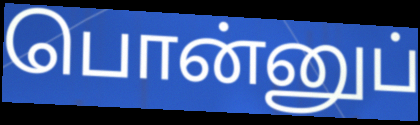
பொன்னுப்